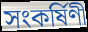
সংকর্ষিণী